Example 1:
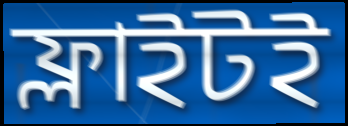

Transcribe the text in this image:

ফ্লাইটই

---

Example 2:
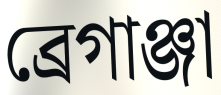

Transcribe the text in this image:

ব্রেগাঞ্জা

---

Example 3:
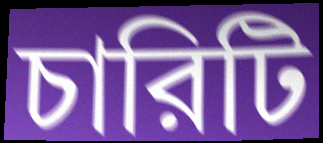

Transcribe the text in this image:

চারিটি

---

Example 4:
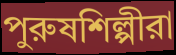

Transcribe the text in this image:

পুরুষশিল্পীরা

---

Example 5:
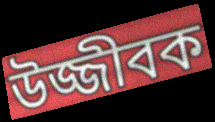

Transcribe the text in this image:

উজ্জীবক